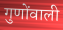
गुणोंवाली